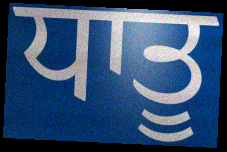
ਧਾਤੂ